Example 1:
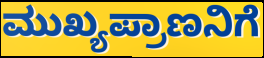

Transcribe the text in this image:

ಮುಖ್ಯಪ್ರಾಣನಿಗೆ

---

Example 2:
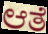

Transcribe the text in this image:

ಆತೆ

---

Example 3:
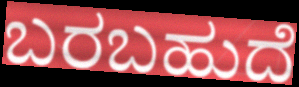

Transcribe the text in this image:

ಬರಬಹುದೆ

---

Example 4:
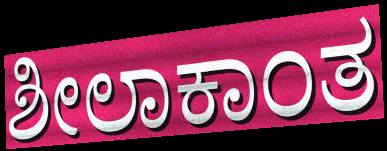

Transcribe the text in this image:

ಶೀಲಾಕಾಂತ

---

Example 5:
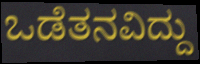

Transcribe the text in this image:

ಒಡೆತನವಿದ್ದು